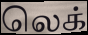
லெக்